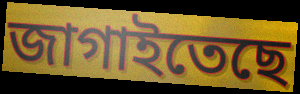
জাগাইতেছে